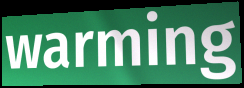
warming